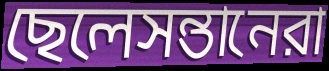
ছেলেসন্তানেরা